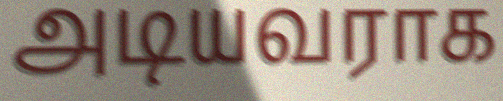
அடியவராக